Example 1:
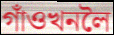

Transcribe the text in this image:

গাঁওখনলৈ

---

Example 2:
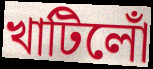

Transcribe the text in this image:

খাটিলোঁ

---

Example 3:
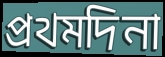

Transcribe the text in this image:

প্ৰথমদিনা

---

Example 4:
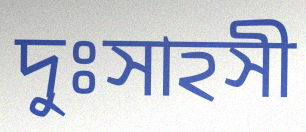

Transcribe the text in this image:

দুঃসাহসী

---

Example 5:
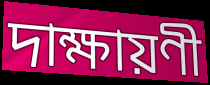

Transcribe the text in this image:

দাক্ষায়ণী